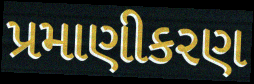
પ્રમાણીકરણ